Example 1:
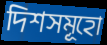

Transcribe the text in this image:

দিশসমূহো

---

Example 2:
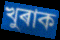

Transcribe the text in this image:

খুৰাক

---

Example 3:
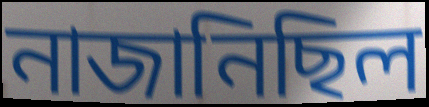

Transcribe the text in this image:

নাজানিছিল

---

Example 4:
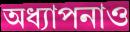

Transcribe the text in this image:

অধ্যাপনাও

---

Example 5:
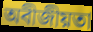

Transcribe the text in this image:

অবীজীয়তা